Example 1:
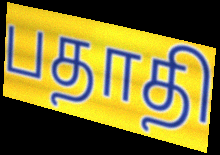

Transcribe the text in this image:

பதாதி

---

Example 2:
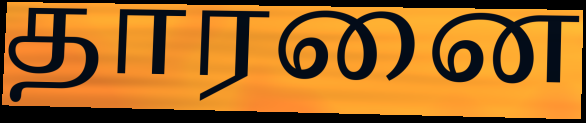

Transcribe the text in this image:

தாரனை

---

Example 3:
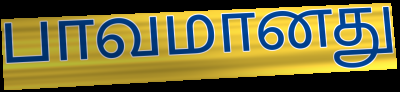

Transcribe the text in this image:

பாவமானது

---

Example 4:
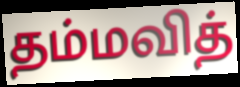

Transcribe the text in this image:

தம்மவித்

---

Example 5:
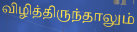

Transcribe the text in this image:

விழித்திருந்தாலும்